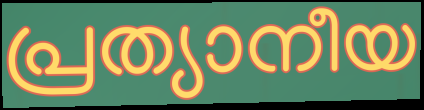
പ്രത്യാനീയ